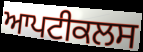
ਆਪਟੀਕਲਸ